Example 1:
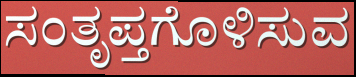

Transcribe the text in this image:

ಸಂತೃಪ್ತಗೊಳಿಸುವ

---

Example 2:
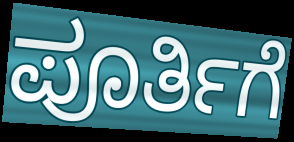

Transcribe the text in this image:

ಪೂರ್ತಿಗೆ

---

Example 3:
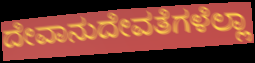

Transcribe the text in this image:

ದೇವಾನುದೇವತೆಗಳೆಲ್ಲಾ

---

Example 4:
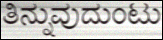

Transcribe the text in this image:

ತಿನ್ನುವುದುಂಟು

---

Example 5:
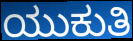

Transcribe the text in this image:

ಯುಕುತಿ